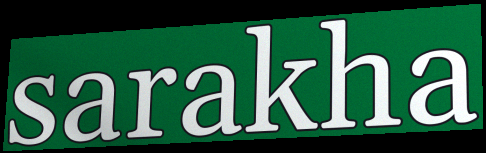
sarakha